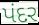
પંદર